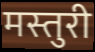
मस्तुरी